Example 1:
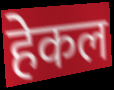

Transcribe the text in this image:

हेकल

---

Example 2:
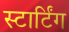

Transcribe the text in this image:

स्टार्टिंग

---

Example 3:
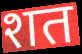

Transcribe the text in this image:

शत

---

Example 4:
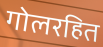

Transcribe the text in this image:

गोलरहित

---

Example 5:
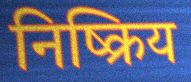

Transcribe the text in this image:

निष्क्रिय